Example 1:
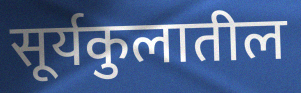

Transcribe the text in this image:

सूर्यकुलातील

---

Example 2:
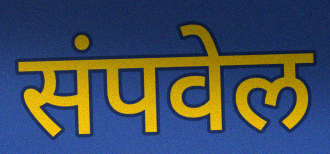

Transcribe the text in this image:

संपवेल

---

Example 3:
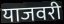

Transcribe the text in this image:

याजवरी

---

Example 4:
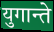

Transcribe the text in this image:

युगान्ते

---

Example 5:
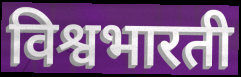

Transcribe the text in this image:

विश्वभारती